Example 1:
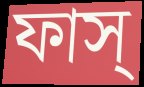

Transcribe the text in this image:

ফাস্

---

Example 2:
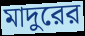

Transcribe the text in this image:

মাদুরের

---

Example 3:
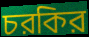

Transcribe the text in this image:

চরকির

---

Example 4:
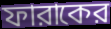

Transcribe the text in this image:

ফারাকের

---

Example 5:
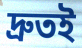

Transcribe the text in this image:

দ্রুতই